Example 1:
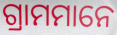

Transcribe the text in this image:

ଗ୍ରାମମାନେ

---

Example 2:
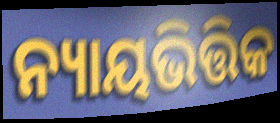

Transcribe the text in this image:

ନ୍ୟାୟଭିତ୍ତିକ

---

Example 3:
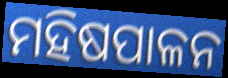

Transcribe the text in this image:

ମହିଷପାଳନ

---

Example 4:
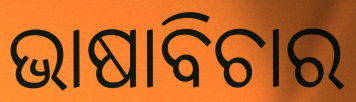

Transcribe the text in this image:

ଭାଷାବିଚାର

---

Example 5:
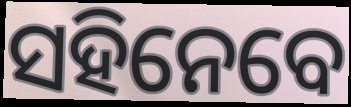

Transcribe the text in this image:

ସହିନେବେ